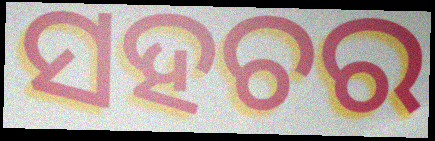
ସହଚର